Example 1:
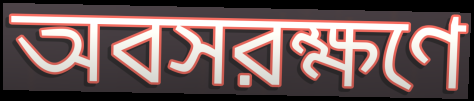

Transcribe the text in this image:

অবসরক্ষণে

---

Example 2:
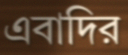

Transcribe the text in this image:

এবাদির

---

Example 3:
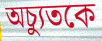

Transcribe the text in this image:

অচ্যুতকে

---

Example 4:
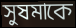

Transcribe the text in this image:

সুষমাকে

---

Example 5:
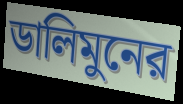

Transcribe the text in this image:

ডালিমুনের